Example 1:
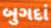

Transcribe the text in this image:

બુગદાં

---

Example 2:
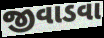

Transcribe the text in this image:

જીવાડવા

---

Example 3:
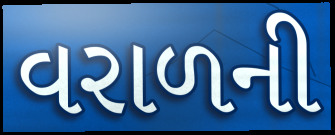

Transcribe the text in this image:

વરાળની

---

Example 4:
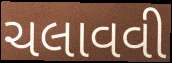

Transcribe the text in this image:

ચલાવવી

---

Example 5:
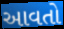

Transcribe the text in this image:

આવતો